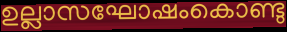
ഉല്ലാസഘോഷംകൊണ്ടു